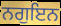
ਨਗੁਇਨ